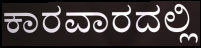
ಕಾರವಾರದಲ್ಲಿ